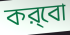
কর্‌বো